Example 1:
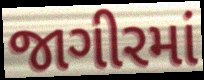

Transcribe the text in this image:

જાગીરમાં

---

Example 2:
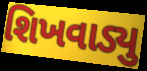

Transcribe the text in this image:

શિખવાડ્યુ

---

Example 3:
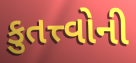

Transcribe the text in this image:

કુતત્ત્વોની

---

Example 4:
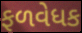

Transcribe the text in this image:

ફળવેધક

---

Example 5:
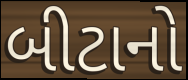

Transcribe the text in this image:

બીટાનો